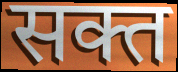
सक्त